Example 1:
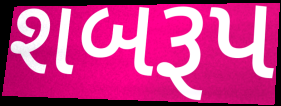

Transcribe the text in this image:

શબરૂપ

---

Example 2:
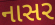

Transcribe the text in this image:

નાસર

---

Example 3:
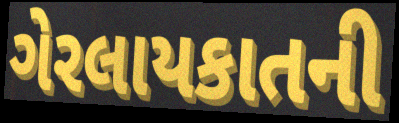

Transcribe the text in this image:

ગેરલાયકાતની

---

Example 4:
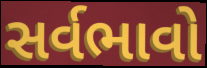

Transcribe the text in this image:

સર્વભાવો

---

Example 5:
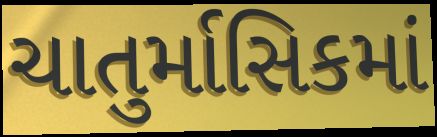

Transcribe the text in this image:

ચાતુર્માસિકમાં